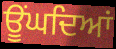
ਊਂਘਦਿਆਂ